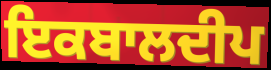
ਇਕਬਾਲਦੀਪ